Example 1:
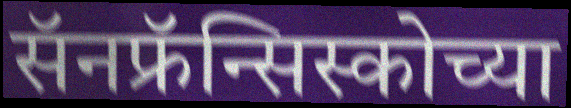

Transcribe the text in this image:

सॅनफ्रॅन्सिस्कोच्या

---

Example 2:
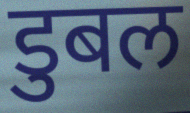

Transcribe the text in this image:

डुबल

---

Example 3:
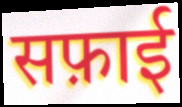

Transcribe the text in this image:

सफ़ाई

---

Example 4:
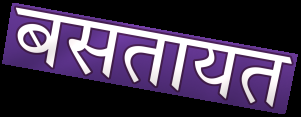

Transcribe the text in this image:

बसतायत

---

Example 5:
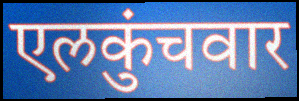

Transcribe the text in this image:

एलकुंचवार